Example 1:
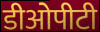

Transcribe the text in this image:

डीओपीटी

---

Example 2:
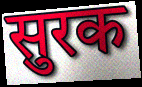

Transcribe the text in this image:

सुरक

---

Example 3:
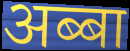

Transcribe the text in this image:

अब्बा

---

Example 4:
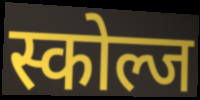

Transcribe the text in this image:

स्कोल्ज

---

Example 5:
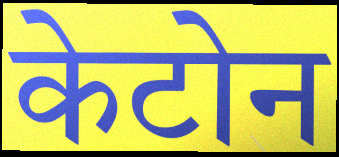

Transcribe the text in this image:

केटोन